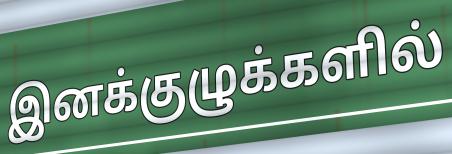
இனக்குழுக்களில்